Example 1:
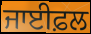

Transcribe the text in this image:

ਜਾਈਫ਼ਲ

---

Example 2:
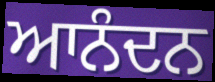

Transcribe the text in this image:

ਆਨੰਦਨ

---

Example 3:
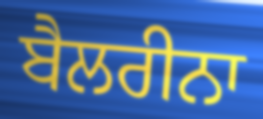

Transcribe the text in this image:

ਬੈਲਰੀਨਾ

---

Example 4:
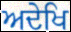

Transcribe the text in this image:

ਅਦੇਖਿ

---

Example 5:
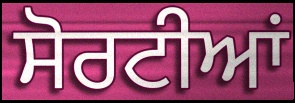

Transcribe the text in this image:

ਸੋਰਟੀਆਂ